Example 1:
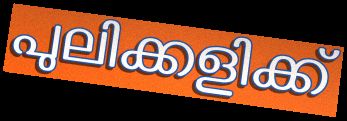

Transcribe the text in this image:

പുലിക്കളിക്ക്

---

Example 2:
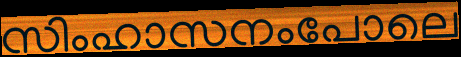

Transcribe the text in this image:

സിംഹാസനംപോലെ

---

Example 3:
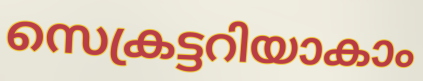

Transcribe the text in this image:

സെക്രട്ടറിയാകാം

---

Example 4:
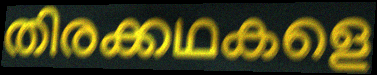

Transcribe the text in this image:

തിരക്കഥകളെ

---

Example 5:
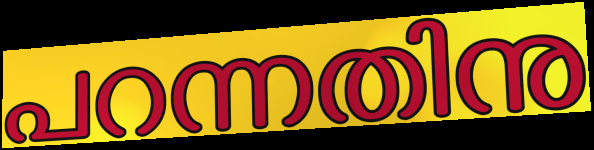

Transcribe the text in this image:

പറന്നതിനു